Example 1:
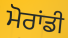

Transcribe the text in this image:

ਮੋਰਾਂਡੀ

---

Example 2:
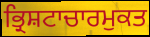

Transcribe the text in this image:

ਭ੍ਰਿਸ਼ਟਾਚਾਰਮੁਕਤ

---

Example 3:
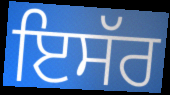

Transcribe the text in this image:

ਇਸੱਰ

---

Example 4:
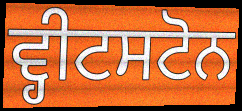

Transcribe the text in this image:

ਵ੍ਹੀਟਸਟੋਨ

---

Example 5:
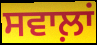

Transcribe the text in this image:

ਸਵਾਲ਼ਾਂ